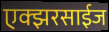
एक्झरसाईज